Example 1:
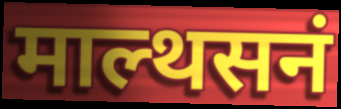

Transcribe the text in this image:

माल्थसनं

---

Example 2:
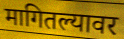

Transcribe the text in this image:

मागितल्यावर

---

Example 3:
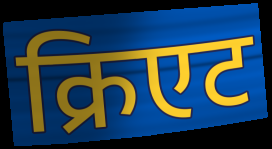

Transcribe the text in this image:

क्रिएट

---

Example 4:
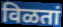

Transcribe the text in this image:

विळतां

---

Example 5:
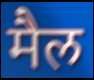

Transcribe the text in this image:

मैल